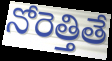
నోరెత్తితే